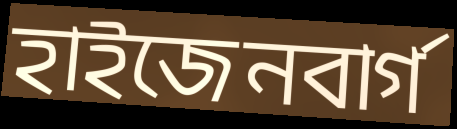
হাইজেনবাৰ্গ